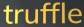
truffle